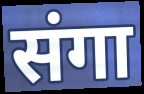
संगा